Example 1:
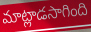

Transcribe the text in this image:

మాట్లాడసాగింది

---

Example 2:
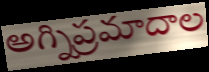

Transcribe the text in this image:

అగ్నిప్రమాదాల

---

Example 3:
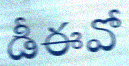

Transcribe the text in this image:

డీఈవో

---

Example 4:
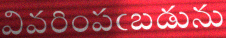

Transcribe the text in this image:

వివరింపఁబడును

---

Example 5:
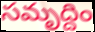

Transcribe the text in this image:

సమృద్దిం